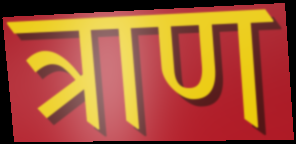
त्राण